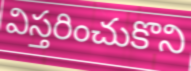
విస్తరించుకొని